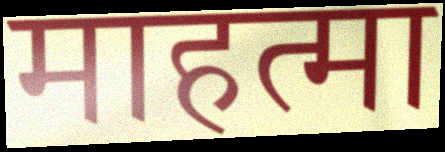
माहत्मा